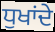
ਧੁਖਾਂਦੇ